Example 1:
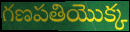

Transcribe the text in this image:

గణపతియొక్క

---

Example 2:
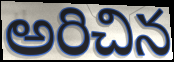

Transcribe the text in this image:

అరిచిన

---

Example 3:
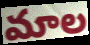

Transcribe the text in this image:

మాల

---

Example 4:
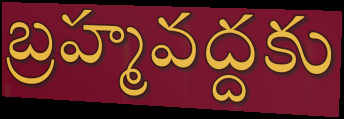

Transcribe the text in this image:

బ్రహ్మవద్దకు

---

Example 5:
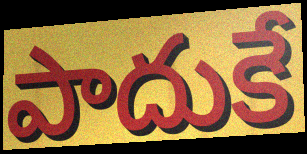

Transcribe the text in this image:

పాదుకే